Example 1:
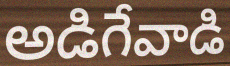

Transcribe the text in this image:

అడిగేవాడి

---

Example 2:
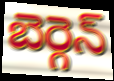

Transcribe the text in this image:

బెర్గెన్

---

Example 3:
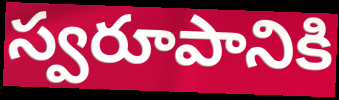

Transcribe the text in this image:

స్వరూపానికి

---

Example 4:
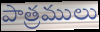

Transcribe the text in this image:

పాత్రములు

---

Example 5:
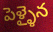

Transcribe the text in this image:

పెళ్ళైన